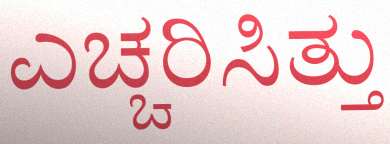
ಎಚ್ಚರಿಸಿತ್ತು